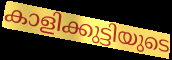
കാളിക്കുട്ടിയുടെ